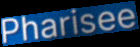
Pharisee